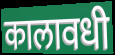
कालावधी